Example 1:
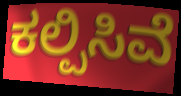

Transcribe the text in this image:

ಕಲ್ಪಿಸಿವೆ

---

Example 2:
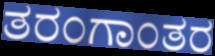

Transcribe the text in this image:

ತರಂಗಾಂತರ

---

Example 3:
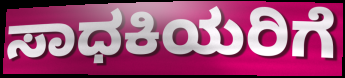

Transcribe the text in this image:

ಸಾಧಕಿಯರಿಗೆ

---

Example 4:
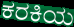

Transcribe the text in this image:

ಕರಕಿಯ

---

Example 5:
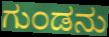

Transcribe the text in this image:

ಗುಂಡನು